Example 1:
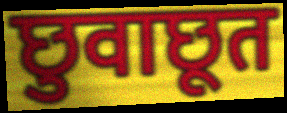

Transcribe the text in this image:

छुवाछूत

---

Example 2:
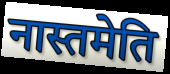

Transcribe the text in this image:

नास्तमेति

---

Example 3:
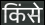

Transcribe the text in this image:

किंसे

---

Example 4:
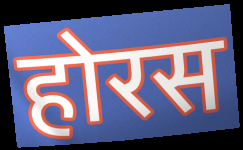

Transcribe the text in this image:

होरस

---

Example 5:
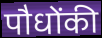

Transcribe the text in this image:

पौधोंकी